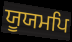
ਯੂਯਮਪਿ